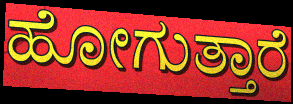
ಹೋಗುತ್ತಾರೆ